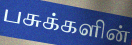
பசுக்களின்